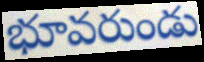
భూవరుండు